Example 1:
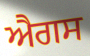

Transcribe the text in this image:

ਐਗਸ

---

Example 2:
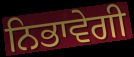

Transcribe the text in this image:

ਨਿਭਾਵੇਗੀ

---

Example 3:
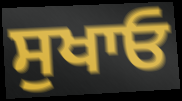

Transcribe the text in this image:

ਸੁਖਾਓ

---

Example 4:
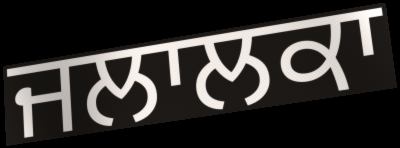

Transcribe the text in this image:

ਜਲਾਲਕਾ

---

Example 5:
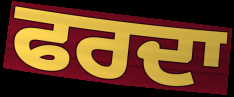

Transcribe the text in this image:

ਫਰਦਾ